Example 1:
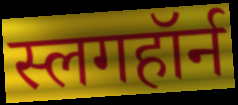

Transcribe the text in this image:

स्लगहॉर्न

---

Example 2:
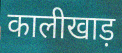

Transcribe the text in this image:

कालीखाड़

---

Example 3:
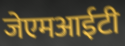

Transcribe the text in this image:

जेएमआईटी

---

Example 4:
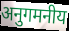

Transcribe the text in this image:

अनुगमनीय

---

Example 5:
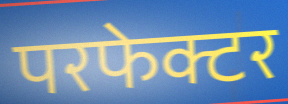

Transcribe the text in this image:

परफेक्टर